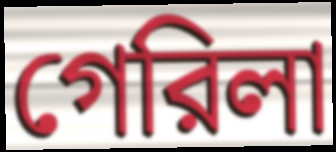
গেরিলা